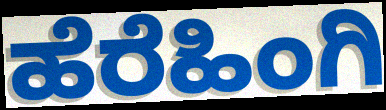
ಹೆರೆಹಿಂಗಿ